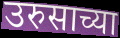
उरुसाच्या